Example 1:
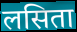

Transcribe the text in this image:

लसिता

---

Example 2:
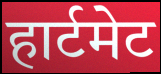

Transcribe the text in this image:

हार्टमेट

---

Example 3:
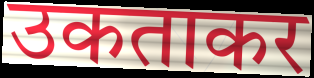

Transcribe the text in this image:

उकताकर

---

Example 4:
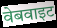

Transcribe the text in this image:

वेबवाइट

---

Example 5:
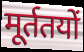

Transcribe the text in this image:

मूर्ततयों